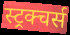
स्ट्रक्चर्स